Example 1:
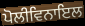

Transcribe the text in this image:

ਪੋਲੀਵਿਨਾਇਲ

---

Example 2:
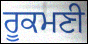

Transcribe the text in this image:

ਰੂਕਮਣੀ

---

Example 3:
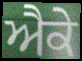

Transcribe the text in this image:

ਐਕੇ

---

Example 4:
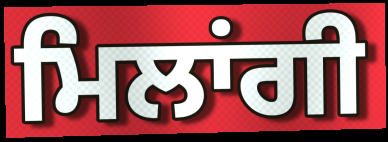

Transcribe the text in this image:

ਮਿਲਾਂਗੀ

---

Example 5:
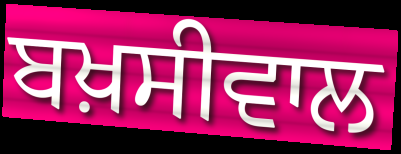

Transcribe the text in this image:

ਬਖ਼ਸੀਵਾਲ